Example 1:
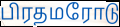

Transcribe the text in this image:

பிரதமரோடு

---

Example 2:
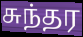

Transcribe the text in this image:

சுந்தர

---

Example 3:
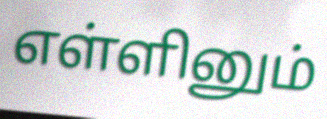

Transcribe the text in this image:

எள்ளினும்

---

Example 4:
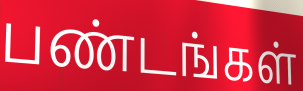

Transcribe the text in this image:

பண்டங்கள்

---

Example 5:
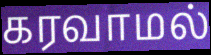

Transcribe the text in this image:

கரவாமல்